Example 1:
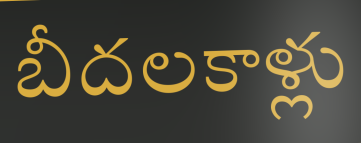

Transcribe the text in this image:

బీదలకాళ్లు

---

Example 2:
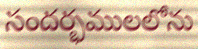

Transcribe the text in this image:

సందర్భములలోను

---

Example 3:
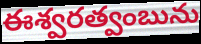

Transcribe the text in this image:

ఈశ్వరత్వంబును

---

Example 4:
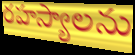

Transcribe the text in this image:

రహస్యాలను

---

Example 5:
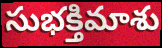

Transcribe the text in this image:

సుభక్తిమాశు